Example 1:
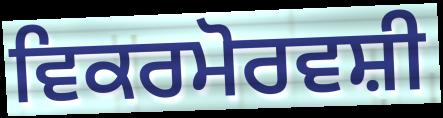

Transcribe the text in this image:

ਵਿਕਰਮੋਰਵਸ਼ੀ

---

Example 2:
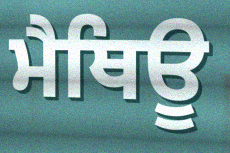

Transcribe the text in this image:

ਮੈਥਿਊ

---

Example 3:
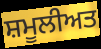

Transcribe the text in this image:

ਸ਼ਮੂਲੀਅਤ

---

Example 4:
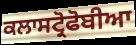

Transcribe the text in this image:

ਕਲਾਸਟ੍ਰੋਫੋਬੀਆ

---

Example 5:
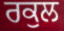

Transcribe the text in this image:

ਰਕੁਲ